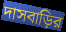
দাসবাড়ির